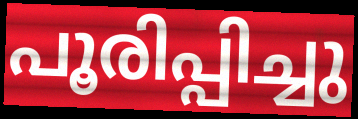
പൂരിപ്പിച്ചു